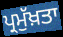
ਪ੍ਰਮੁੱਖ਼ਤਾ